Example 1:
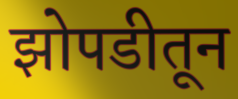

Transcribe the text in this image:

झोपडीतून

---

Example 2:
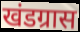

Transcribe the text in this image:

खंडग्रास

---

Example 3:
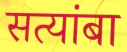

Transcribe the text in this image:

सत्यांबा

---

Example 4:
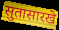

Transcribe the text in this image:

सुतासारखे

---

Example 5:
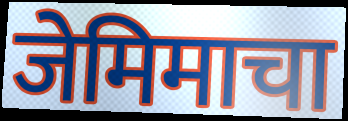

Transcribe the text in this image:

जेमिमाचा